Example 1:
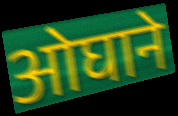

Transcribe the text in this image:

ओघाने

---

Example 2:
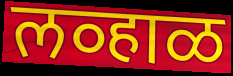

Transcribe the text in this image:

लव्हाळ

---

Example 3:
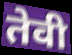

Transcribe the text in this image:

तेवी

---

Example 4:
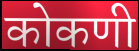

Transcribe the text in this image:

कोकणी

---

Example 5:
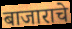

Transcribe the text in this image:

बाजाराचे